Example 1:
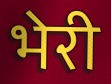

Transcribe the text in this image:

भेरी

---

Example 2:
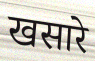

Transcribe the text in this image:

खसारे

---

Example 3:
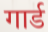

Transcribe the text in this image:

गार्ड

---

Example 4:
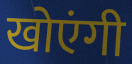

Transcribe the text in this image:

खोएंगी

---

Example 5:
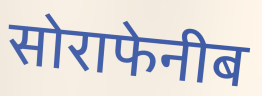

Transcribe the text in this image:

सोराफेनीब